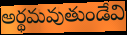
అర్థమవుతుండేవి